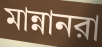
মান্নানরা